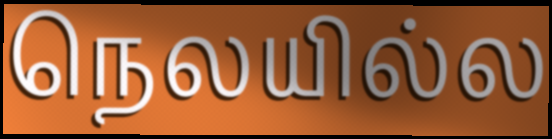
நெலயில்ல